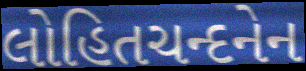
લોહિતચન્દનેન